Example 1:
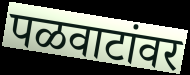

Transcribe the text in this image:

पळवाटांवर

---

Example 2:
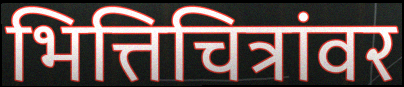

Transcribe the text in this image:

भित्तिचित्रांवर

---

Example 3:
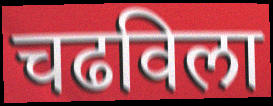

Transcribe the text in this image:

चढविला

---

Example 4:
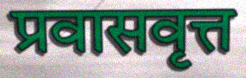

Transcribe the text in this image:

प्रवासवृत्त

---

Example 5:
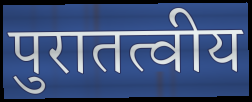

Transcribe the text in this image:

पुरातत्वीय